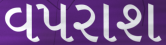
વપરાશ